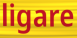
ligare